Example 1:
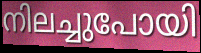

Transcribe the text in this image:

നിലച്ചുപോയി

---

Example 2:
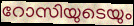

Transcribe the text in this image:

റോസിയുടെയും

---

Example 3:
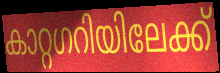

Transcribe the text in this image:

കാറ്റഗറിയിലേക്ക്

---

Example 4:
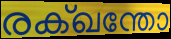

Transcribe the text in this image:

രക്ഖന്തോ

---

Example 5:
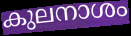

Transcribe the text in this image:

കുലനാശം